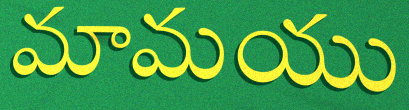
మామయు